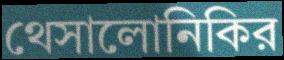
থেসালোনিকির